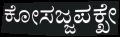
ಕೋಸಜ್ಜಪಕ್ಖೇ